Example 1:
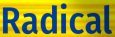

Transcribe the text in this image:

Radical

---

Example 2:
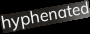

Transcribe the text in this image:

hyphenated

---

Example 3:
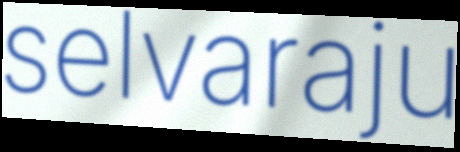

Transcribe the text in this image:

selvaraju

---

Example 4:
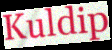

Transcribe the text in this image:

Kuldip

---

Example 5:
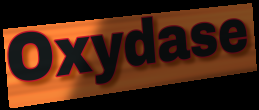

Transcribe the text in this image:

Oxydase